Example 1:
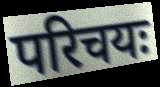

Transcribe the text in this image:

परिचयः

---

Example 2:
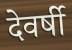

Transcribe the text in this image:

देवर्षी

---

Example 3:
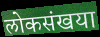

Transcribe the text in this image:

लोकसंखया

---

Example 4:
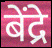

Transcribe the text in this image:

बेंद्रे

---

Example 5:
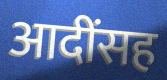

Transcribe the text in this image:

आदींसह